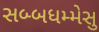
સબ્બધમ્મેસુ